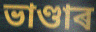
ভাণ্ডাৰ